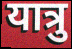
यात्रु